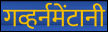
गव्हर्नमेंटानी